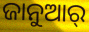
ଜାନୁଆର୍